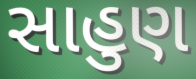
સાહુણ